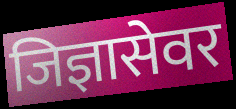
जिज्ञासेवर